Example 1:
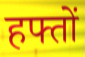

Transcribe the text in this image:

हफ्तों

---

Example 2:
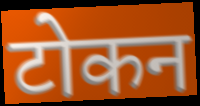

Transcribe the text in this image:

टोकन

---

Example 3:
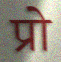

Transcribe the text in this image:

प्रो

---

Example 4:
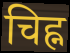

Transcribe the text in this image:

चिह्न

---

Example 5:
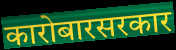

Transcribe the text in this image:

कारोबारसरकार